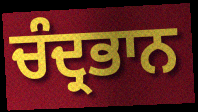
ਚੰਦ੍ਰਭਾਨ